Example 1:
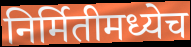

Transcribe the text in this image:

निर्मितीमध्येच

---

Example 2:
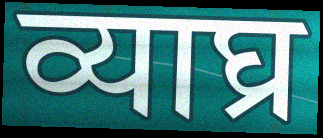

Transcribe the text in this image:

व्याघ्र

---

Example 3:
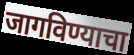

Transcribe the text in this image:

जागविण्याचा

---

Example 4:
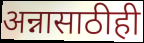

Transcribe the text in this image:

अन्नासाठीही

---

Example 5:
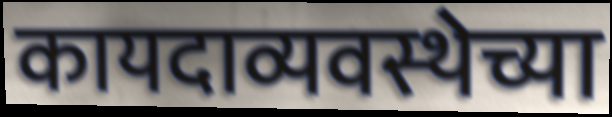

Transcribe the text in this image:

कायदाव्यवस्थेच्या